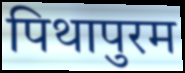
पिथापुरम